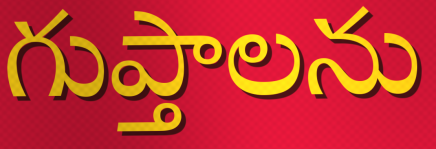
గుప్తాలను